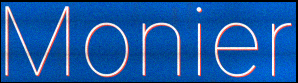
Monier